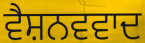
ਵੈਸ਼ਨਵਵਾਦ